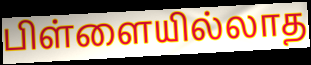
பிள்ளையில்லாத